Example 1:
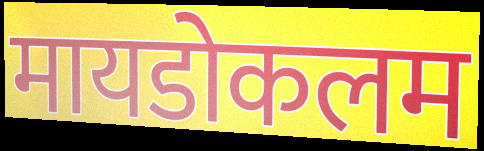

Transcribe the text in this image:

मायडोकलम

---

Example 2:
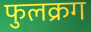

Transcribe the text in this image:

फुलक्रग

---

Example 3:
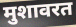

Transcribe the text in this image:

मुशावरत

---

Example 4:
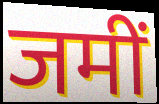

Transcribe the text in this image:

जमीं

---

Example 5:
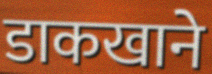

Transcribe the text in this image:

डाकखाने